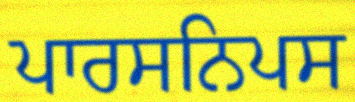
ਪਾਰਸਨਿਪਸ